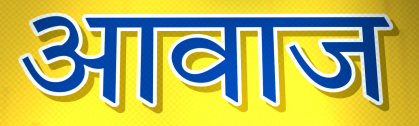
आवाज